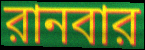
রানবার